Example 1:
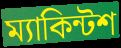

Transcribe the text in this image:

ম্যাকিন্টশ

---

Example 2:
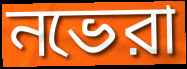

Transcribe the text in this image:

নভেরা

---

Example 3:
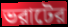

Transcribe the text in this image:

ভরাটের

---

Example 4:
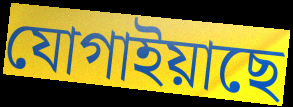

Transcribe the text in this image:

যোগাইয়াছে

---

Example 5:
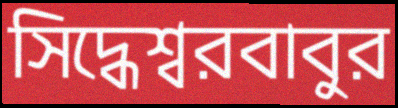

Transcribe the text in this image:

সিদ্ধেশ্বরবাবুর